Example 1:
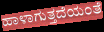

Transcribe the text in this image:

ಹಾಳಾಗುತ್ತದೆಯಂತೆ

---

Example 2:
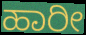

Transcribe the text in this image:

ಹಾರೀ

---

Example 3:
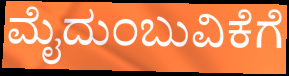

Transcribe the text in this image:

ಮೈದುಂಬುವಿಕೆಗೆ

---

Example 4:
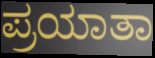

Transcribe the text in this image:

ಪ್ರಯಾತಾ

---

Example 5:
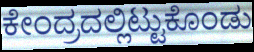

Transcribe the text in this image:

ಕೇಂದ್ರದಲ್ಲಿಟ್ಟುಕೊಂಡು